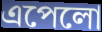
এপেলো